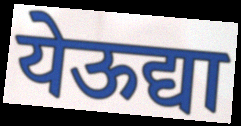
येऊद्या